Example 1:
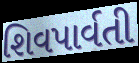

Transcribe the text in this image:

શિવપાર્વતી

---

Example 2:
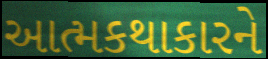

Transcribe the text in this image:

આત્મકથાકારને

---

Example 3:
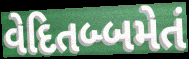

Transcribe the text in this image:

વેદિતબ્બમેતં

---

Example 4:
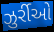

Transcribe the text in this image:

ઝુર્રીઓ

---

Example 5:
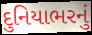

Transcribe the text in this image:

દુનિયાભરનું